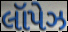
લૉપેઝ